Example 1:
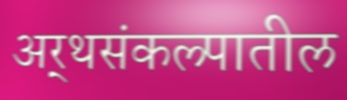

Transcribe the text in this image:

अर्थसंकल्पातील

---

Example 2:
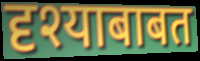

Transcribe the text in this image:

दृश्याबाबत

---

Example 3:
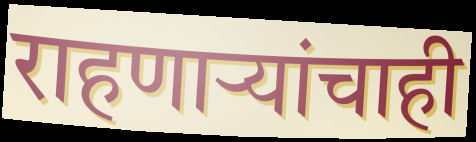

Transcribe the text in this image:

राहणाऱ्यांचाही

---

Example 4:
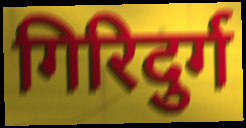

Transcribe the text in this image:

गिरिदुर्ग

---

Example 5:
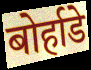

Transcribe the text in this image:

बोर्हाडे